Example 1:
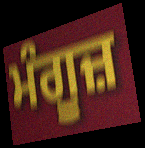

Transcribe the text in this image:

ਮੰਗੂਜ਼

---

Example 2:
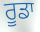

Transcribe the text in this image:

ਰੂਡਾ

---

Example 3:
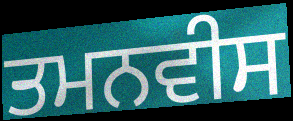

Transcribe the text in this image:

ਤਮਨਵੀਸ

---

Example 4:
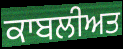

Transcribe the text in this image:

ਕਾਬਲੀਅਤ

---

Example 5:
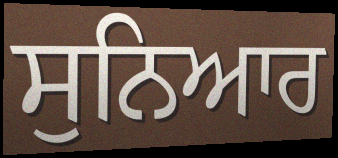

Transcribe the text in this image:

ਸੁਨਿਆਰ